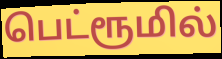
பெட்ரூமில்